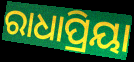
ରାଧାପ୍ରିୟା